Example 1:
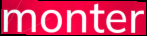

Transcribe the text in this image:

monter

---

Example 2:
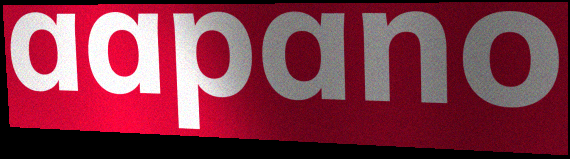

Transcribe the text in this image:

aapano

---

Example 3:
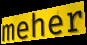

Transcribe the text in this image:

meher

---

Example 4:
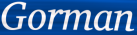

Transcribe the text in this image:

Gorman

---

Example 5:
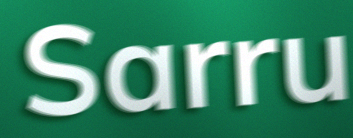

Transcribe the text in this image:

Sarru